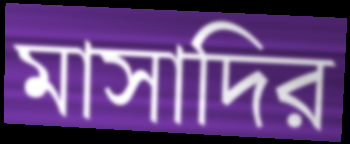
মাসাদির